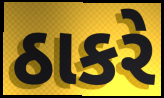
ઠાકરે